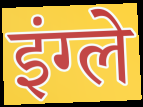
इंग्ले